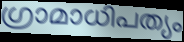
ഗ്രാമാധിപത്യം